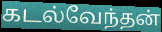
கடல்வேந்தன்